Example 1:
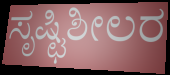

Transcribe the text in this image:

ಸೃಷ್ಟಿಶೀಲರ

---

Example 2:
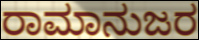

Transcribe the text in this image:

ರಾಮಾನುಜರ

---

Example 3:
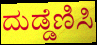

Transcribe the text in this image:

ದುಡ್ಡೆಣಿಸಿ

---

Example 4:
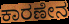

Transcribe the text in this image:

ಕಾರಣೇನ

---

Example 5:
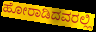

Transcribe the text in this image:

ಹೋರಾಡಿದವರಲ್ಲಿ